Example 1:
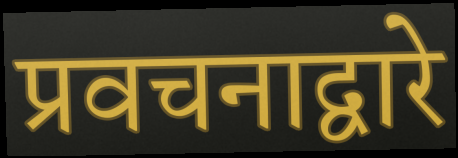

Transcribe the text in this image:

प्रवचनाद्वारे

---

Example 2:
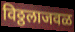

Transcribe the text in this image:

विठ्ठलाजवळ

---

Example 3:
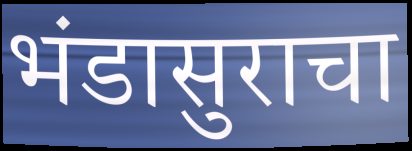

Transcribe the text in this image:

भंडासुराचा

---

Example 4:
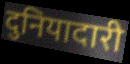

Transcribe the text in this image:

दुनियादारी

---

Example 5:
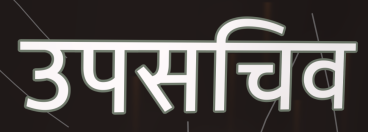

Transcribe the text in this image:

उपसचिव